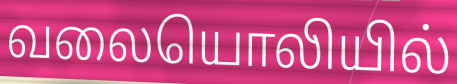
வலையொலியில்